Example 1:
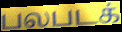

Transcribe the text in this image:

பலபடக்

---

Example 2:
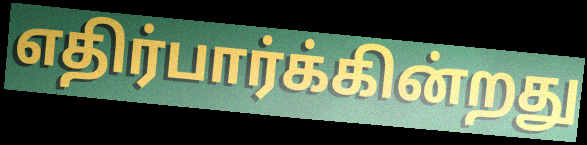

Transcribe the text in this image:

எதிர்பார்க்கின்றது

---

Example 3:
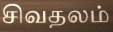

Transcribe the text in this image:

சிவதலம்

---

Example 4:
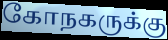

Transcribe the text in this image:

கோநகருக்கு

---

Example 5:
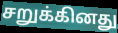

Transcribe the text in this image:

சறுக்கினது